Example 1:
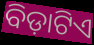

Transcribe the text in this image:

ବିଡ଼ାଟିଏ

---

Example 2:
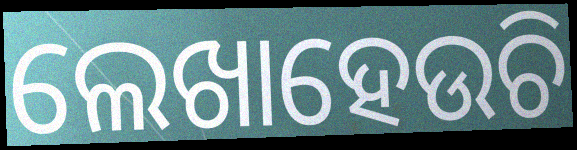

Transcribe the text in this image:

ଲେଖାହେଉଚି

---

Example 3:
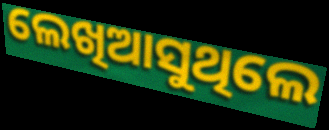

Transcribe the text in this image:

ଲେଖିଆସୁଥିଲେ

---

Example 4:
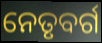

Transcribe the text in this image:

ନେତୃବର୍ଗ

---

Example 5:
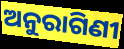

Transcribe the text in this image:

ଅନୁରାଗିଣୀ